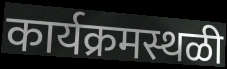
कार्यक्रमस्थळी